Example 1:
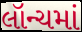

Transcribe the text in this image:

લૉન્ચમાં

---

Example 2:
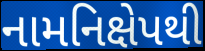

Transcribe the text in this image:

નામનિક્ષેપથી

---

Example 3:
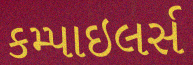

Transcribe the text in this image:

કમ્પાઇલર્સ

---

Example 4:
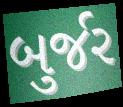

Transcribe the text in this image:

બુર્જર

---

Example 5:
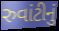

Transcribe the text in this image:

રુવાંટીનું